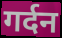
गर्दन